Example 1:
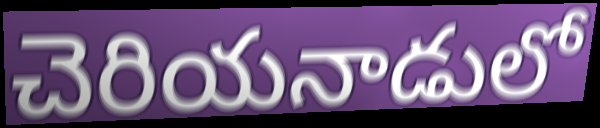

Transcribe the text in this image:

చెరియనాడులో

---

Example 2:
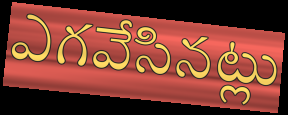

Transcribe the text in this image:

ఎగవేసినట్లు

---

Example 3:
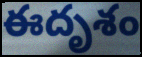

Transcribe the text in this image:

ఈదృశం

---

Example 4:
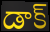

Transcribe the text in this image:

డాక్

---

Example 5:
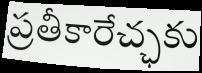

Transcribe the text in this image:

ప్రతీకారేచ్ఛకు